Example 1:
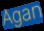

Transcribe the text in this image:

Agan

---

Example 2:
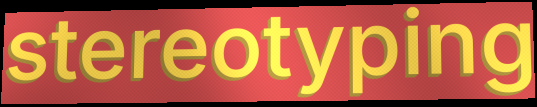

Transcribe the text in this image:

stereotyping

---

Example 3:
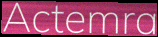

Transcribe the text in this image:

Actemra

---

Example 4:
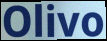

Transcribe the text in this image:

Olivo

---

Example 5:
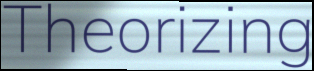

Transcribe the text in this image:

Theorizing